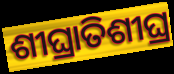
ଶୀଘ୍ରାତିଶୀଘ୍ର